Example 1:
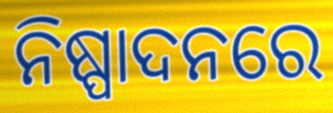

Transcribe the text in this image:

ନିଷ୍ପାଦନରେ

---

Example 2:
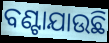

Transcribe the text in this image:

ବଣ୍ଟାଯାଉଛି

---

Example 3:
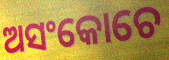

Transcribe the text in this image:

ଅସଂକୋଚେ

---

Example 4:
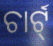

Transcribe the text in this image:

ଚାର୍ଟ୍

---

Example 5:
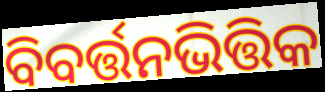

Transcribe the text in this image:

ବିବର୍ତ୍ତନଭିତ୍ତିକ